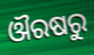
ଔରଷରୁ